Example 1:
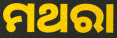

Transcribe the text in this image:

ମଥରା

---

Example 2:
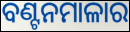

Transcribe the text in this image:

ବଣ୍ଟନମାଳାର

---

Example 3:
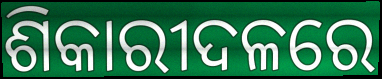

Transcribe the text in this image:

ଶିକାରୀଦଳରେ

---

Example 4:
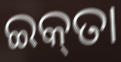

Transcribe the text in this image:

ଇକ୍‌ତା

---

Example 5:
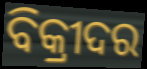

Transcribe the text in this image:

ବିକ୍ରୀଦର